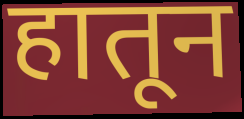
हातून